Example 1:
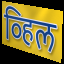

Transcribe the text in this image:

व्हिल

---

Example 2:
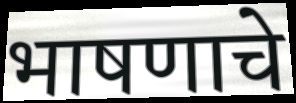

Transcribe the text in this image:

भाषणाचे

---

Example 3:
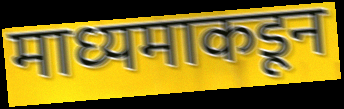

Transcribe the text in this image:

माध्यमाकडून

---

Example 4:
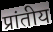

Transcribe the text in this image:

प्रांतीय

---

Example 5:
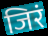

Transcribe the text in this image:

जिरं